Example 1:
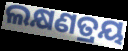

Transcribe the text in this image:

ଲକ୍ଷଣତ୍ରୟ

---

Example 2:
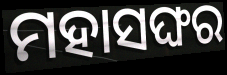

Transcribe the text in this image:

ମହାସଙ୍ଘର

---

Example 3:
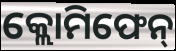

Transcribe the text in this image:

କ୍ଲୋମିଫେନ୍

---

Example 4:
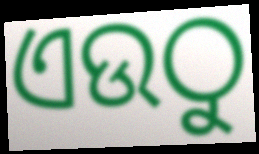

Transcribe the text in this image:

ଏଉଠୁ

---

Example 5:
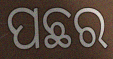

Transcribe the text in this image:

ପଛର